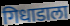
गिधाडाला